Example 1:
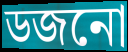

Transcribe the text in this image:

ডজনো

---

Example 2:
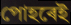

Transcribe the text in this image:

পোহৰেই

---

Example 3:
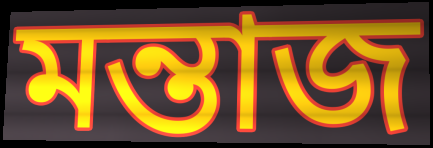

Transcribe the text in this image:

মন্তাজ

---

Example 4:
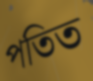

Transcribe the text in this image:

পতিত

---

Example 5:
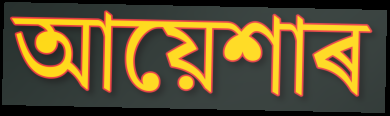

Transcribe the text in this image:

আয়েশাৰ